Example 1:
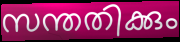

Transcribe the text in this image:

സന്തതിക്കും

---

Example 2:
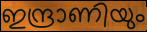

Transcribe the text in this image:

ഇന്ദ്രാണിയും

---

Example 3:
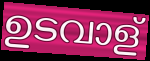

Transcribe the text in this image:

ഉടവാള്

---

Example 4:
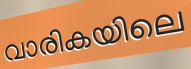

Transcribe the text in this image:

വാരികയിലെ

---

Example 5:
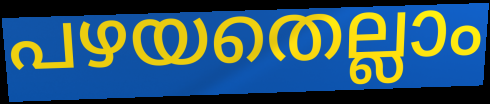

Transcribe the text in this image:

പഴയതെല്ലാം